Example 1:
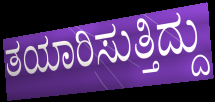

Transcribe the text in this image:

ತಯಾರಿಸುತ್ತಿದ್ದು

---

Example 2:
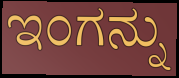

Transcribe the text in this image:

ಇಂಗನ್ನು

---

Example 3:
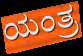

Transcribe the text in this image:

ಯಂತ್ರ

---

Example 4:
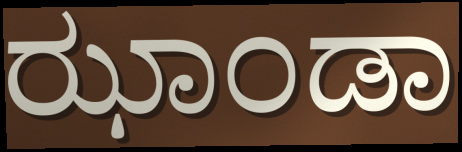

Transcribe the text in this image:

ಝಾಂಡಾ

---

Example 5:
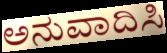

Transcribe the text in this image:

ಅನುವಾದಿಸಿ